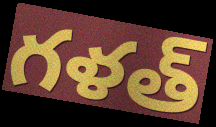
గళత్